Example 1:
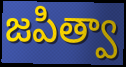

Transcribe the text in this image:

జపిత్వా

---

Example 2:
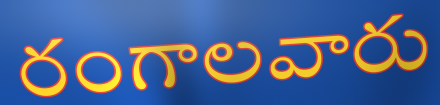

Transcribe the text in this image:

రంగాలవారు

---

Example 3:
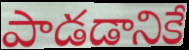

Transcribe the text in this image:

పాడడానికే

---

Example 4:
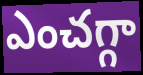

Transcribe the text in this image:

ఎంచగ్గా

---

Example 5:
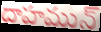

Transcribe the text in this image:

దాహమున్